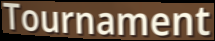
Tournament